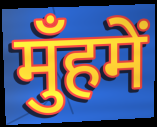
मुँहमें